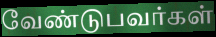
வேண்டுபவர்கள்